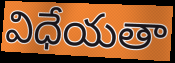
విధేయతా